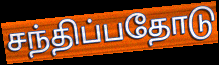
சந்திப்பதோடு